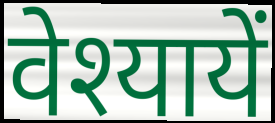
वेश्यायें